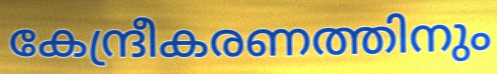
കേന്ദ്രീകരണത്തിനും